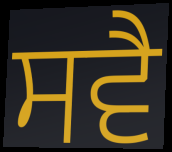
ਸਵੈ